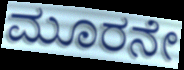
ಮೂರನೇ